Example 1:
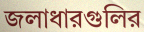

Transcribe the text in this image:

জলাধারগুলির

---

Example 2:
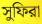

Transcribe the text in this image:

সুফিরা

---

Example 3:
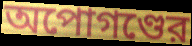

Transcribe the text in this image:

অপোগণ্ডের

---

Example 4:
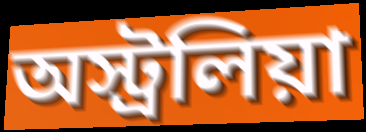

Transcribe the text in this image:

অস্ট্রলিয়া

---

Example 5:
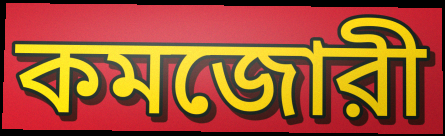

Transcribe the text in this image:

কমজোরী